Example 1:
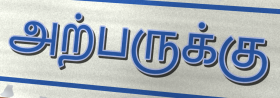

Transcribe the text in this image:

அற்பருக்கு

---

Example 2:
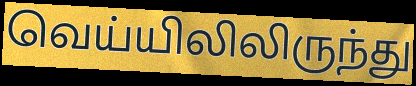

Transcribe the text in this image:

வெய்யிலிலிருந்து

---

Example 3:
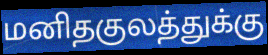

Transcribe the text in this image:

மனிதகுலத்துக்கு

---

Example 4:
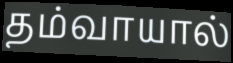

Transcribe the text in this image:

தம்வாயால்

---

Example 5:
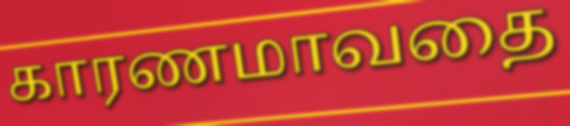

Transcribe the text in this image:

காரணமாவதை